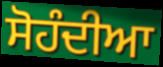
ਸੋਹੰਦੀਆ